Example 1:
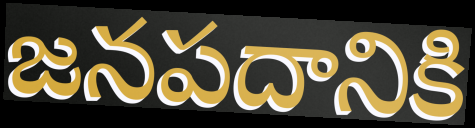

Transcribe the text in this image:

జనపదానికి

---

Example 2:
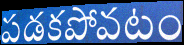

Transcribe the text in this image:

పడకపోవటం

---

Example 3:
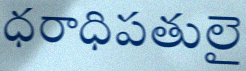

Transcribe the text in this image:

ధరాధిపతులై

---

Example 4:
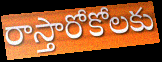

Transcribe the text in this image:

రాస్తారోకోలకు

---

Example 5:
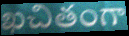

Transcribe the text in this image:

ఖచితంగా